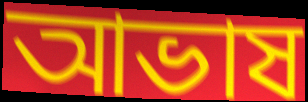
আভাষ